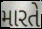
મારતે